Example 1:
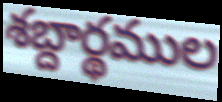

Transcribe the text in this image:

శబ్దార్థముల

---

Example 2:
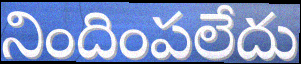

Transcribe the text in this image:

నిందింపలేదు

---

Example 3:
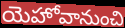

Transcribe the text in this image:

యెహోవానుంచి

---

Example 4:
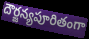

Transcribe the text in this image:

దౌర్జన్యపూరితంగా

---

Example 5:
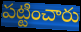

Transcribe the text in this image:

పట్టించారు